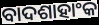
ବାଦଶାହାଂକ